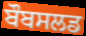
ਬੌਬਸਲਡ